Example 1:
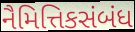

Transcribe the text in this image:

નૈમિત્તિકસંબંધ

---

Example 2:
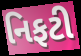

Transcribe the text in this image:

નિફટી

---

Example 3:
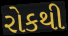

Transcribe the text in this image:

રોકથી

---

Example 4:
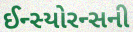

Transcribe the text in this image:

ઈન્સ્યોરન્સની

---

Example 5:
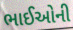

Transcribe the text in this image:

ભાઈઓની